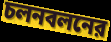
চলনবলনের